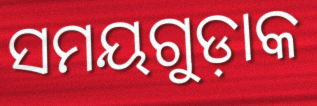
ସମୟଗୁଡ଼ାକ